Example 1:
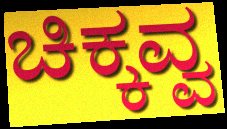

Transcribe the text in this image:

ಚಿಕ್ಕವ್ವ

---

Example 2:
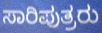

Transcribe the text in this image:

ಸಾರಿಪುತ್ರರು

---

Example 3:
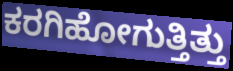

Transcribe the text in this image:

ಕರಗಿಹೋಗುತ್ತಿತ್ತು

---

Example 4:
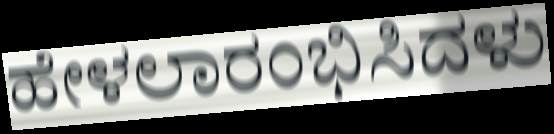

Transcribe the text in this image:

ಹೇಳಲಾರಂಭಿಸಿದಳು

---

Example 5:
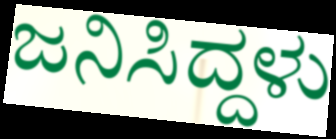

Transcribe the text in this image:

ಜನಿಸಿದ್ದಳು